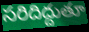
సరిదిద్దుతూ